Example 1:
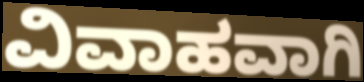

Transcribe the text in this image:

ವಿವಾಹವಾಗಿ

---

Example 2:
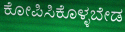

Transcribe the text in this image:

ಕೋಪಿಸಿಕೊಳ್ಳಬೇಡ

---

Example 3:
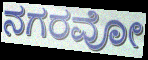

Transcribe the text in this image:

ನಗರವೋ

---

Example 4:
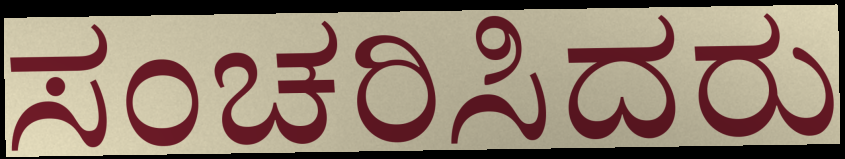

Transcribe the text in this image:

ಸಂಚರಿಸಿದರು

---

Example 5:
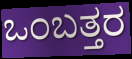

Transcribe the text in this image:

ಒಂಬತ್ತರ